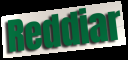
Reddiar